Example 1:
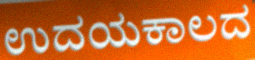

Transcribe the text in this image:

ಉದಯಕಾಲದ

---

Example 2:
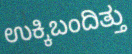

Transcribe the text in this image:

ಉಕ್ಕಿಬಂದಿತ್ತು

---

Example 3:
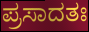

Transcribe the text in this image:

ಪ್ರಸಾದತಃ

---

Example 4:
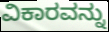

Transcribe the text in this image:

ವಿಕಾರವನ್ನು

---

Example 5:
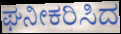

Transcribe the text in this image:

ಘನೀಕರಿಸಿದ